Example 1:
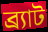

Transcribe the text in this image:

ব্র্যাট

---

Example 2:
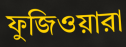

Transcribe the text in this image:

ফুজিওয়ারা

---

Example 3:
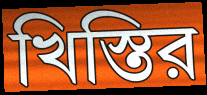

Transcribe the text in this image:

খিস্তির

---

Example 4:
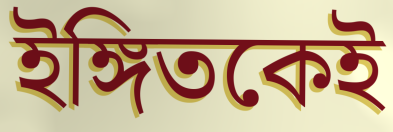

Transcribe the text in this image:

ইঙ্গিতকেই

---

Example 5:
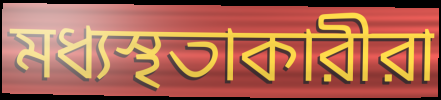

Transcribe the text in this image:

মধ্যস্থতাকারীরা